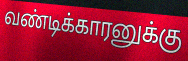
வண்டிக்காரனுக்கு